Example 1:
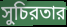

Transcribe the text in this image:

সুচিরতার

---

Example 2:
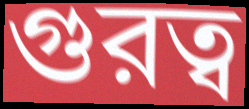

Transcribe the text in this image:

গুরত্ব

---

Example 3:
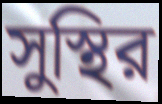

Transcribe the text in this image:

সুস্থির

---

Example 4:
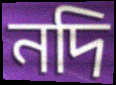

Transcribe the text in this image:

নদি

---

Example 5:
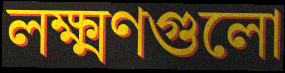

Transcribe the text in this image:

লক্ষ্মণগুলো